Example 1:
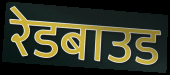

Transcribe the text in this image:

रेडबाउड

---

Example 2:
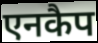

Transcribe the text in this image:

एनकैप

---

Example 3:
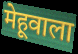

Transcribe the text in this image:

मेहूवाला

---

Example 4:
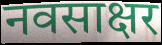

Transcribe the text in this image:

नवसाक्षर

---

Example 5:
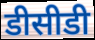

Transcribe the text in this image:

डीसीडी